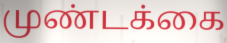
முண்டக்கை